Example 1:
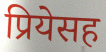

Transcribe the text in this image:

प्रियेसह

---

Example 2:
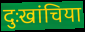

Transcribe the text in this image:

दुःखांचिया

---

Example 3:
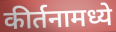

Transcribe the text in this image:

कीर्तनामध्ये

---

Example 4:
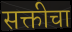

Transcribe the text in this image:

सक्तीचा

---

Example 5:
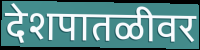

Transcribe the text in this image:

देशपातळीवर